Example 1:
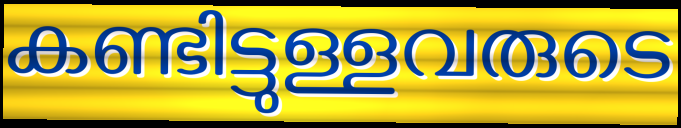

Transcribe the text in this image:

കണ്ടിട്ടുള്ളവരുടെ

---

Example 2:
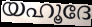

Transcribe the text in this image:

യഹൂദേ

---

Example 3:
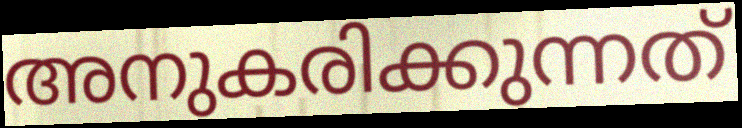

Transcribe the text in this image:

അനുകരിക്കുന്നത്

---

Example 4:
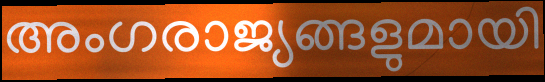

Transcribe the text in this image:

അംഗരാജ്യങ്ങളുമായി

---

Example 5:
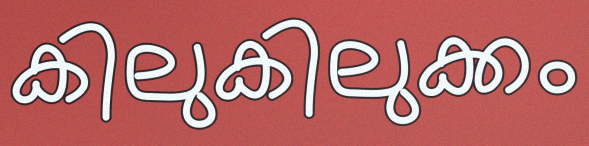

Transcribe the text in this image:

കിലുകിലുക്കം